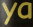
ya